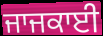
ਜਾਜਕਾਈ